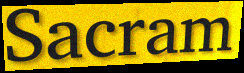
Sacram